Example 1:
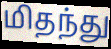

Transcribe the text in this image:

மிதந்து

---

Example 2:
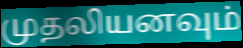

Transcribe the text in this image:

முதலியனவும்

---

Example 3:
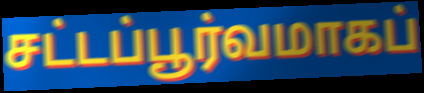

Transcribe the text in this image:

சட்டப்பூர்வமாகப்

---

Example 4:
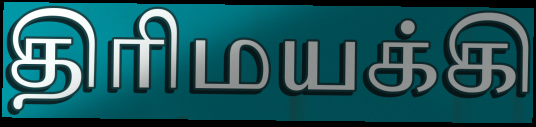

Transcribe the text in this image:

திரிமயக்கி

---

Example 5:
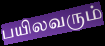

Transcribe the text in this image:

பயிலவரும்